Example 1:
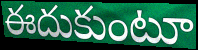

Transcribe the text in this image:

ఈదుకుంటూ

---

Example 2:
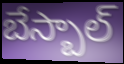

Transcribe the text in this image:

బేస్బాల్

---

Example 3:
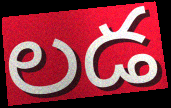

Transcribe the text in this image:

లడ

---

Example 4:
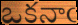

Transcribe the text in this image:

ఒకనాఁ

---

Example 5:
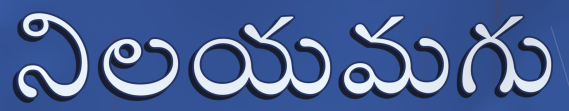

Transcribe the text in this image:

నిలయమగు